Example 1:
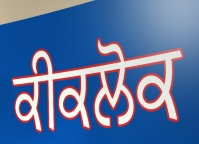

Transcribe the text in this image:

ਕੀਕਲੋਕ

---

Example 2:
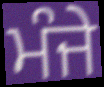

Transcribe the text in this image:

ਮੰਜੇ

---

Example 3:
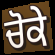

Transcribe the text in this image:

ਚੋਕੇ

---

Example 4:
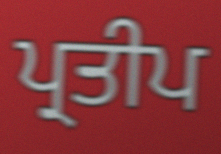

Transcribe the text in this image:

ਪ੍ਰਤੀਪ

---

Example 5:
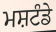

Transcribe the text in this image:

ਮਸ਼ਟੰਡੇ